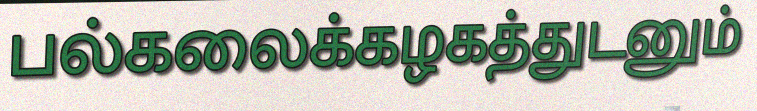
பல்கலைக்கழகத்துடனும்